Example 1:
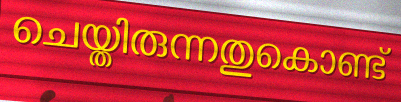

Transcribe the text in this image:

ചെയ്തിരുന്നതുകൊണ്ട്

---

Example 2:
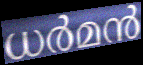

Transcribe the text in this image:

ധർമൻ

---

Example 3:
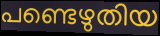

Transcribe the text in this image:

പണ്ടെഴുതിയ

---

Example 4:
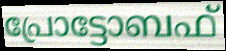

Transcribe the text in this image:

പ്രോട്ടോബഫ്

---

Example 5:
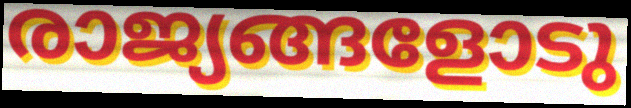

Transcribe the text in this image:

രാജ്യങ്ങളോടു